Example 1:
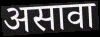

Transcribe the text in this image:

असावा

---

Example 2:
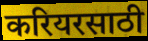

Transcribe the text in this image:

करियरसाठी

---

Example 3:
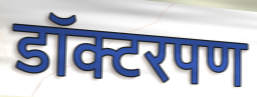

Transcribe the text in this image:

डॉक्टरपण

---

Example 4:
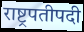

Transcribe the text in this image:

राष्ट्रपतीपदी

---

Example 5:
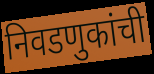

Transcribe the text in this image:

निवडणुकांची